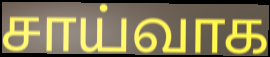
சாய்வாக